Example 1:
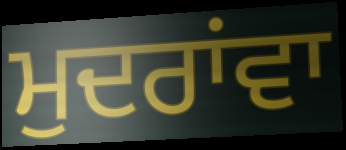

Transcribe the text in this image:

ਮੁਦਰਾਂਵਾ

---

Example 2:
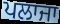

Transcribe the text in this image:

ਪਲਾਜਾ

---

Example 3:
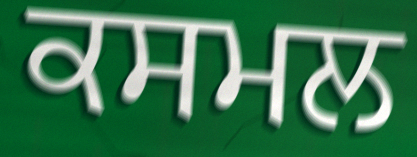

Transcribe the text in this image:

ਕਸਮਲ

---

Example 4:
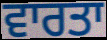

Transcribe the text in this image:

ਵਾਰਤਾ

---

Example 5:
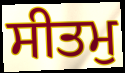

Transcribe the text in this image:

ਸੀਤਮੁ